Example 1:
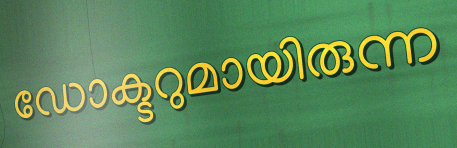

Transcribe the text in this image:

ഡോക്ടറുമായിരുന്ന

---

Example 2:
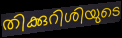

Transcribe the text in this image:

തിക്കുറിശിയുടെ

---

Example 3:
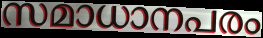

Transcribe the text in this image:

സമാധാനപരം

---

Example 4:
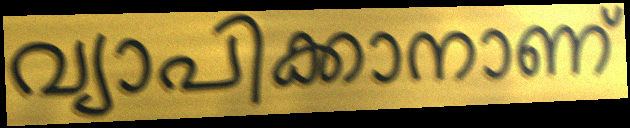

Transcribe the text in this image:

വ്യാപിക്കാനാണ്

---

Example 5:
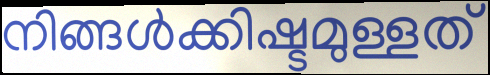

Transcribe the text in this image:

നിങ്ങൾക്കിഷ്ടമുള്ളത്